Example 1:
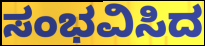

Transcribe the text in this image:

ಸಂಭವಿಸಿದ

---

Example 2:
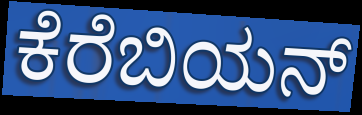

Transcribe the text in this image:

ಕೆರೆಬಿಯನ್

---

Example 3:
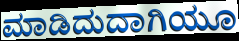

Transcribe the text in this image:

ಮಾಡಿದುದಾಗಿಯೂ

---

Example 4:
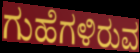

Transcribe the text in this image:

ಗುಹೆಗಳಿರುವ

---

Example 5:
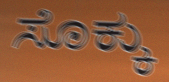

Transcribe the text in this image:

ಸೊಕ್ಕು